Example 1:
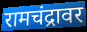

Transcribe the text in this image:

रामचंद्रावर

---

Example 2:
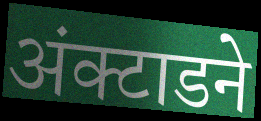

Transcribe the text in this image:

अंक्टाडने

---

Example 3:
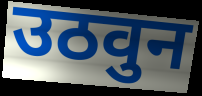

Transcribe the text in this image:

उठवुन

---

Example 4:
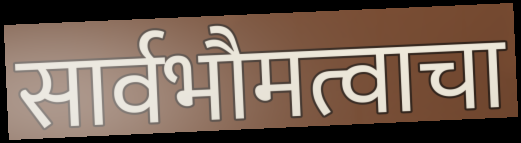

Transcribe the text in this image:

सार्वभौमत्वाचा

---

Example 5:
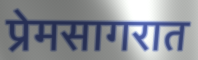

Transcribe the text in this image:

प्रेमसागरात